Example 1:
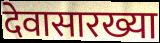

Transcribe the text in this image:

देवासारख्या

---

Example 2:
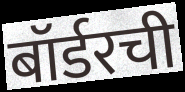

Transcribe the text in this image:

बॉर्डरची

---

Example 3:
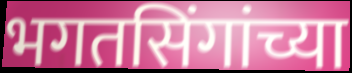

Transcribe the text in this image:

भगतसिंगांच्या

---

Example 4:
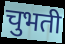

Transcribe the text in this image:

चुभती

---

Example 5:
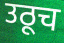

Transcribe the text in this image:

उठूच